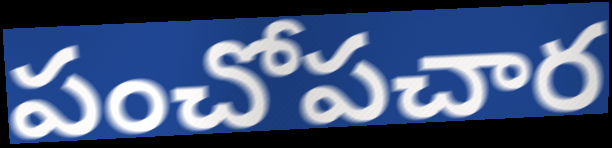
పంచోపచార